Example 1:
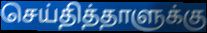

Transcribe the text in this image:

செய்தித்தாளுக்கு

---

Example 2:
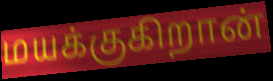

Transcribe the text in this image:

மயக்குகிறான்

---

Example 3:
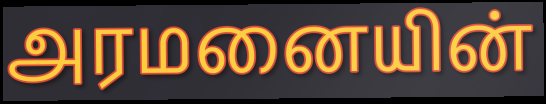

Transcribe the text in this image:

அரமனையின்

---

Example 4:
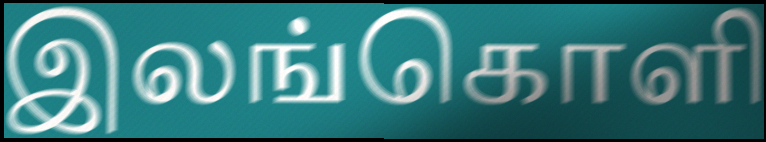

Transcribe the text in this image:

இலங்கொளி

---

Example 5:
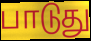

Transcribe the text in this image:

பாடுது